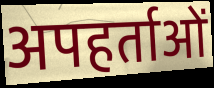
अपहर्ताओं